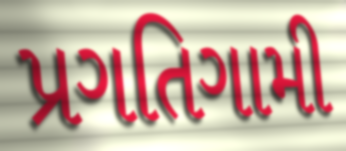
પ્રગતિગામી